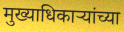
मुख्याधिकाऱ्यांच्या